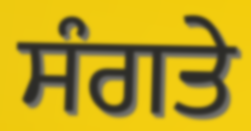
ਸੰਗਤੇ